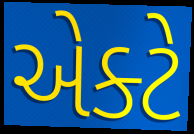
એક્ટે